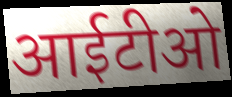
आईटीओ